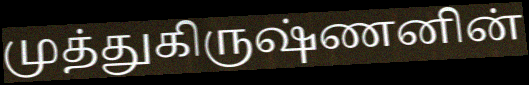
முத்துகிருஷ்ணனின்